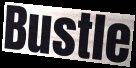
Bustle